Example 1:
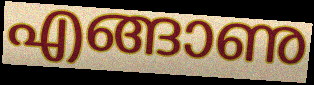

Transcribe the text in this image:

എങ്ങാണു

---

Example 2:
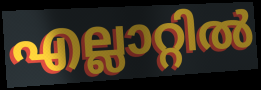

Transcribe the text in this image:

എല്ലാറ്റിൽ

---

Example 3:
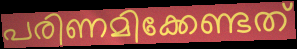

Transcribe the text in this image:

പരിണമിക്കേണ്ടത്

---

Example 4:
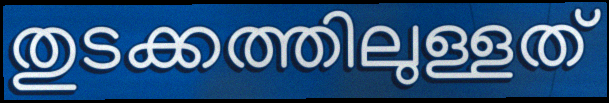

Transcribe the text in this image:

തുടക്കത്തിലുള്ളത്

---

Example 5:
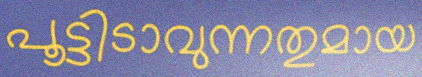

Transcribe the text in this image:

പൂട്ടിടാവുന്നതുമായ